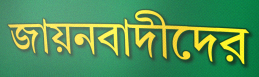
জায়নবাদীদের